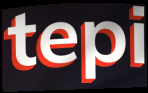
tepi